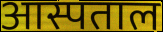
आस्पताल